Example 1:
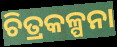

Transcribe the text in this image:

ଚିତ୍ରକଳ୍ପନା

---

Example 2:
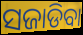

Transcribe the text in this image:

ସଜାଡିବା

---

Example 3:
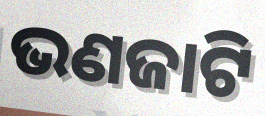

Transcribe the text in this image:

ଭଣଜାଟି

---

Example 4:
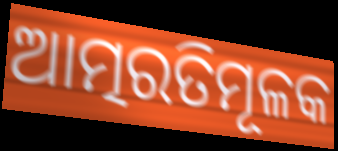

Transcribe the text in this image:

ଆତ୍ମରତିମୂଳକ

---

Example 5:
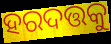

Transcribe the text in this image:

ହରଦତ୍ତକୁ